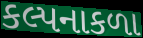
કલ્પનાકળા